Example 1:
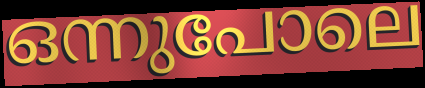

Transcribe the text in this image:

ഒന്നുപോലെ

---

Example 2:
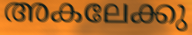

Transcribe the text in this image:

അകലേക്കു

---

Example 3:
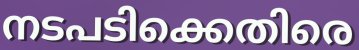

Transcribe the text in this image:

നടപടിക്കെതിരെ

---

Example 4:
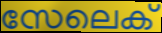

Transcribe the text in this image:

സേലെക്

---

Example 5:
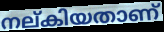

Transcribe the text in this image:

നല്കിയതാണ്